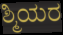
ಶ್ಮಿಯರ